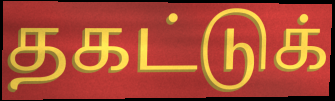
தகட்டுக்